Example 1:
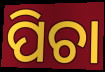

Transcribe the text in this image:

ପିଚା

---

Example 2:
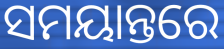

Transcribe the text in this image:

ସମୟାନ୍ତରେ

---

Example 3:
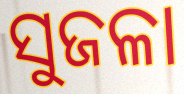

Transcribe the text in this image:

ସୁଜଳା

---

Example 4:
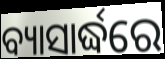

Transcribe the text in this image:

ବ୍ୟାସାର୍ଦ୍ଧରେ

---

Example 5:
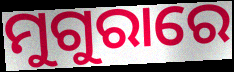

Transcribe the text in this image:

ମୁଗୁରାରେ